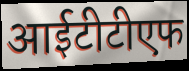
आईटीटीएफ